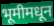
भूमीमधून